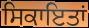
ਸਿਕਾਇਤਾਂ